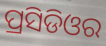
ପ୍ରସିଡିଓର